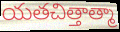
యతచిత్తాత్మా